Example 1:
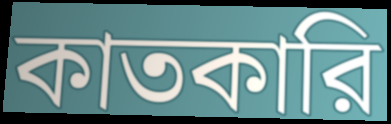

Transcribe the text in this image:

কাতকারি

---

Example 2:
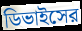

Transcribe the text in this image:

ডিভাইসের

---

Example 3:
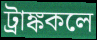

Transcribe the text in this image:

ট্রাঙ্ককলে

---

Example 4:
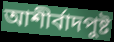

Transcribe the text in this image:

আশীর্বাদপুষ্ট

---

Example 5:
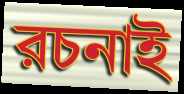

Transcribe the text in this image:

রচনাই